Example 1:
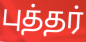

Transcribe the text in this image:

புத்தர்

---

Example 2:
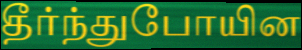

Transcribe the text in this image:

தீர்ந்துபோயின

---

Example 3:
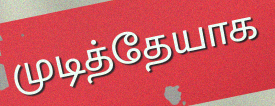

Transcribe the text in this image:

முடித்தேயாக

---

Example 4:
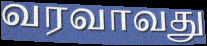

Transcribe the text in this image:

வரவாவது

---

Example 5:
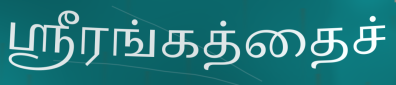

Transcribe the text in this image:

ஸ்ரீரங்கத்தைச்